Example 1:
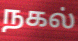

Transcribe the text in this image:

நகல்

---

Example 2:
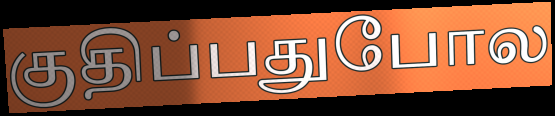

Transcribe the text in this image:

குதிப்பதுபோல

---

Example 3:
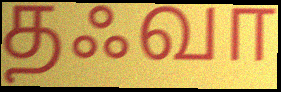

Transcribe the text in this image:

தஃவா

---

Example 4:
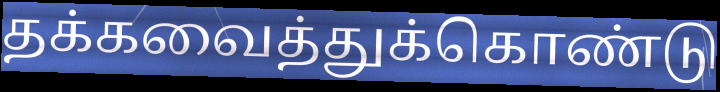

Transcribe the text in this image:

தக்கவைத்துக்கொண்டு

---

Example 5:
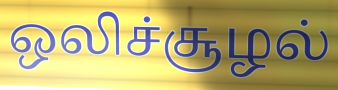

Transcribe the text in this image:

ஒலிச்சூழல்